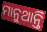
ମାନୁଥାନ୍ତି